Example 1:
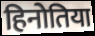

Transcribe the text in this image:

हिनोतिया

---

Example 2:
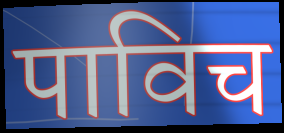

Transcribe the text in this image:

पाविच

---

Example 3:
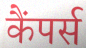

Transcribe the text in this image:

कैंपर्स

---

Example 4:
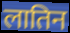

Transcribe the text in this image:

लातिन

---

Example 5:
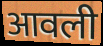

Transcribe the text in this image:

आवली